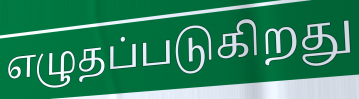
எழுதப்படுகிறது